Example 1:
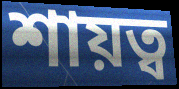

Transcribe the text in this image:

শায়ত্ব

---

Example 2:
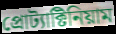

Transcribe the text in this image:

প্রোট্যাক্টিনিয়াম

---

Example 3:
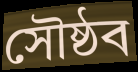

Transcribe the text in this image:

সৌষ্ঠব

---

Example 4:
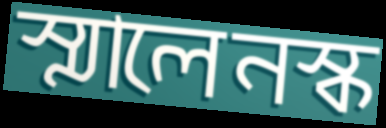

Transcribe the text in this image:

স্মালেনস্ক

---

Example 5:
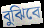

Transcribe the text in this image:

বুঝিবে